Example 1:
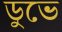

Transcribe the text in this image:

ডুভে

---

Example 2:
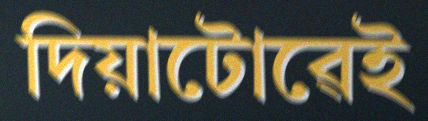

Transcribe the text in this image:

দিয়াটোৱেই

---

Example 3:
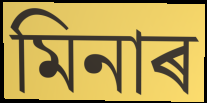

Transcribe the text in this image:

মিনাৰ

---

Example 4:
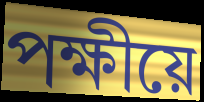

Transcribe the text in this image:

পক্ষীয়ে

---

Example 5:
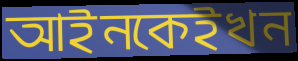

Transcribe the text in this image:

আইনকেইখন